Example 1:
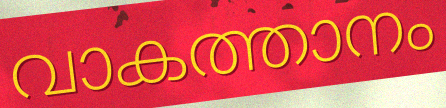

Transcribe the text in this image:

വാകത്താനം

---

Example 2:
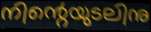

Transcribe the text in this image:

നിന്റെയുടലിനു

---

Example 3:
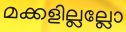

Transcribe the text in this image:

മക്കളില്ലല്ലോ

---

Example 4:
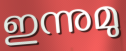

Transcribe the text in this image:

ഇന്നുമു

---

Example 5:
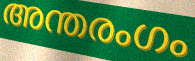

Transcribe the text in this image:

അന്തരംഗം